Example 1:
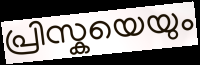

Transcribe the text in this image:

പ്രിസ്കയെയും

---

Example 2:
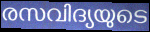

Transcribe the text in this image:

രസവിദ്യയുടെ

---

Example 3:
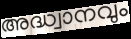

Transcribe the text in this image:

അദ്ധ്വാനവും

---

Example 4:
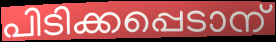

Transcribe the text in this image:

പിടിക്കപ്പെടാന്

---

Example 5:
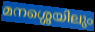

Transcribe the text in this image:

മനശ്ശെയിലും